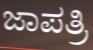
ಜಾಪತ್ರಿ